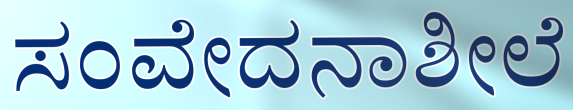
ಸಂವೇದನಾಶೀಲೆ